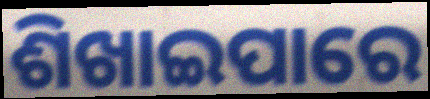
ଶିଖାଇପାରେ